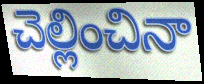
చెల్లించినా